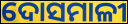
ଦୋସମାଳୀ